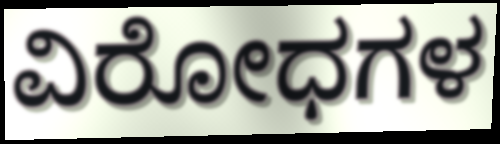
ವಿರೋಧಗಳ